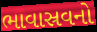
ભાવાસ્રવનો